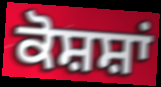
ਕੋਸ਼ਸ਼ਾਂ